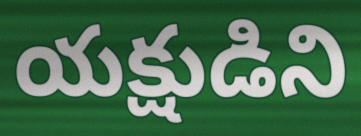
యక్షుడిని